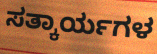
ಸತ್ಕಾರ್ಯಗಳ